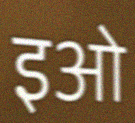
इओ